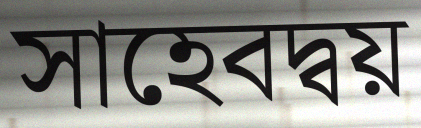
সাহেবদ্বয়